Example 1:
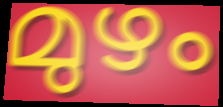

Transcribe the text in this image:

മുഴം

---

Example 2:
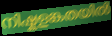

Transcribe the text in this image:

നിഷ്കളങ്കതയിൽ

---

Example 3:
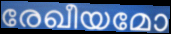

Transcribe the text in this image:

രേഖീയമോ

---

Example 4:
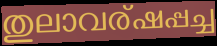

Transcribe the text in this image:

തുലാവര്ഷപ്പച്ച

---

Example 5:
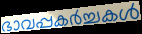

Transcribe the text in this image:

ഭാവപ്പകർച്ചകൾ